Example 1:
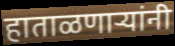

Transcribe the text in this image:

हाताळणाऱ्यांनी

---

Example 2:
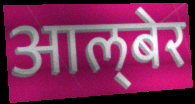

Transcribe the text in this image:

आल्बेर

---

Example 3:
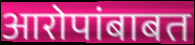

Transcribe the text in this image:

आरोपांबाबत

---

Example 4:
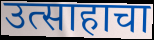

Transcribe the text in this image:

उत्साहाचा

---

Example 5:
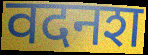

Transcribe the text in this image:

वदनश